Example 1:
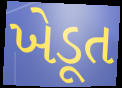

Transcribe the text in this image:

ખેડૂત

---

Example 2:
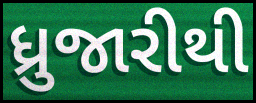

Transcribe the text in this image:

ધ્રુજારીથી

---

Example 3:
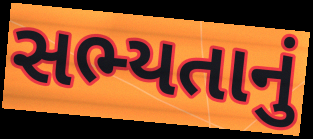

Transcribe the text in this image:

સભ્યતાનું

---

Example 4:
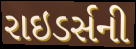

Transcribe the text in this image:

રાઇડર્સની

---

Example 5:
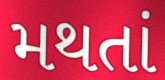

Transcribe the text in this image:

મથતાં